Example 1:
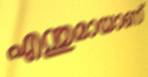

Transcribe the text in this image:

എന്തുമായാണ്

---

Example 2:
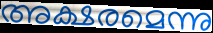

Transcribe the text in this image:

അക്ഷരമെന്നു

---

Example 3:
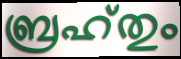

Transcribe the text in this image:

ബ്രഹ്തും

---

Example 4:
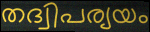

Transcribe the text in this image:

തദ്വിപര്യയം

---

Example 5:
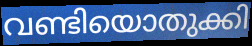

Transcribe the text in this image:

വണ്ടിയൊതുക്കി